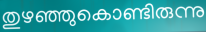
തുഴഞ്ഞുകൊണ്ടിരുന്നു